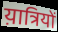
य़ात्रियों